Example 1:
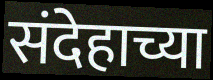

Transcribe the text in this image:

संदेहाच्या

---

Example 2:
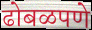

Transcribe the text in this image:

ढोबळपणे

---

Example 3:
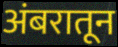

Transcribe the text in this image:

अंबरातून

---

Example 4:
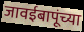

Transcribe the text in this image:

जावईबापूंच्या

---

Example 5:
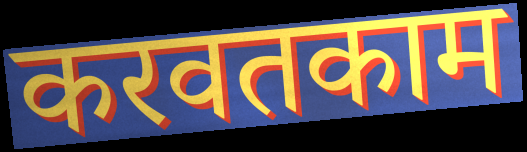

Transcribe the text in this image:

करवतकाम